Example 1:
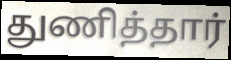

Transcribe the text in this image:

துணித்தார்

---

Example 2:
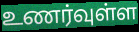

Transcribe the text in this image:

உணர்வுள்ள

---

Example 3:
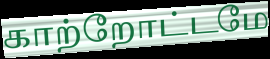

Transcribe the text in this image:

காற்றோட்டமே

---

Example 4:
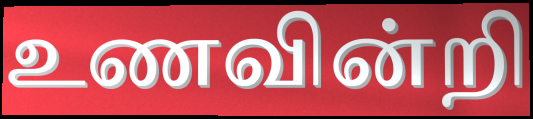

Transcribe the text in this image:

உணவின்றி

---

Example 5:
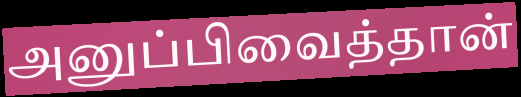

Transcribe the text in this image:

அனுப்பிவைத்தான்